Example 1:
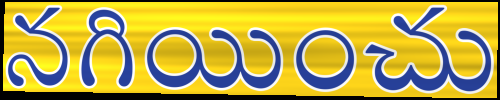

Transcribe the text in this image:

నగియించు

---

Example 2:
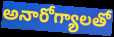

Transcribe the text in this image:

అనారోగ్యాలతో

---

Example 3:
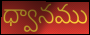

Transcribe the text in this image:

ధ్వానము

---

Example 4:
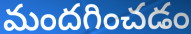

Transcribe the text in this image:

మందగించడం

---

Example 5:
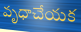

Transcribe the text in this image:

వృధాచేయక